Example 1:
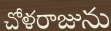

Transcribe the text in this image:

చోళరాజును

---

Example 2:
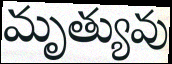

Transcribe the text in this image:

మృత్యువు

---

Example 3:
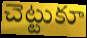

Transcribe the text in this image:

చెట్టుకూ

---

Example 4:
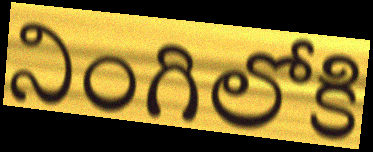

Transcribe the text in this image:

నింగిలోకి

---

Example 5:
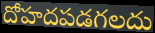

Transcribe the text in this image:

దోహదపడగలదు